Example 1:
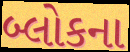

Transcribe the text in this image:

બ્લોકના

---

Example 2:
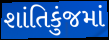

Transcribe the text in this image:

શાંતિકુંજમાં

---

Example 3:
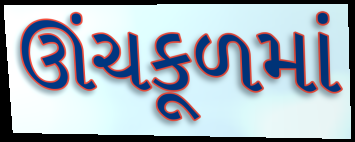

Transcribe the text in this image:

ઊંચકૂળમાં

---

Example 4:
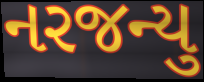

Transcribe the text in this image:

નરજન્યુ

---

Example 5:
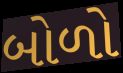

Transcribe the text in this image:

બોળો